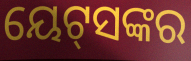
ୟେଟ୍‌ସଙ୍କର